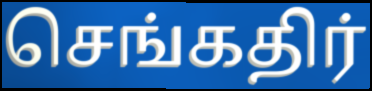
செங்கதிர்